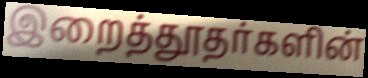
இறைத்தூதர்களின்